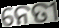
ନେତୀ